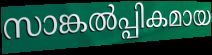
സാങ്കൽപ്പികമായ